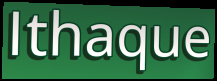
Ithaque